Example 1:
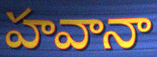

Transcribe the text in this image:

హవానా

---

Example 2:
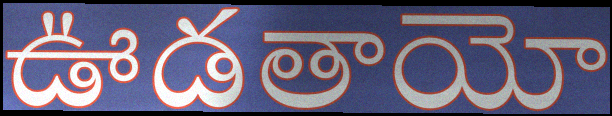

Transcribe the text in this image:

ఊడతాయో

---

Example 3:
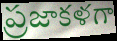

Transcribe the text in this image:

ప్రజాకళగా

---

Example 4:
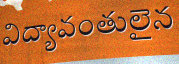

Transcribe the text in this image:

విద్యావంతులైన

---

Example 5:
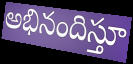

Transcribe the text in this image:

అభినందిస్తూ